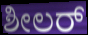
ಶೀಲರ್